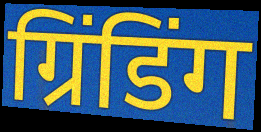
ग्रिंडिंग